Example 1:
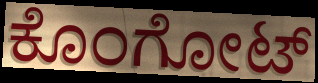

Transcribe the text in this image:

ಕೊಂಗೋಟ್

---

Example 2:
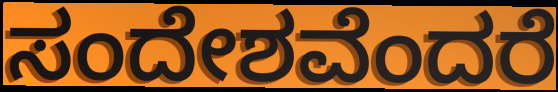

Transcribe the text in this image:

ಸಂದೇಶವೆಂದರೆ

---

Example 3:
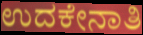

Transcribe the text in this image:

ಉದಕೇನಾತಿ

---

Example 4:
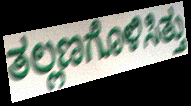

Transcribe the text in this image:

ತಲ್ಲಣಗೊಳಿಸಿತ್ತು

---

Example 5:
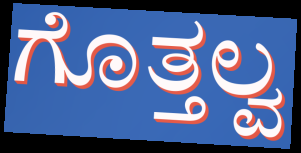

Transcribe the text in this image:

ಗೊತ್ತಲ್ವ